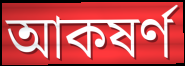
আকষৰ্ণ